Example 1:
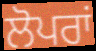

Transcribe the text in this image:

ਲੋਪਰਾਂ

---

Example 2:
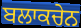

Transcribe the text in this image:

ਬਲਾਕਚੇਨ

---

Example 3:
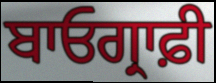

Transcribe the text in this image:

ਬਾਓਗ੍ਰਾਫ਼ੀ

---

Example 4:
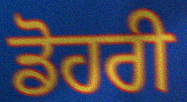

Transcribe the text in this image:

ਡੋਹਰੀ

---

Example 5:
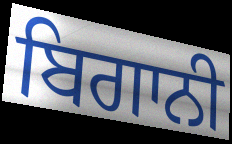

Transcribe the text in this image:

ਬਿਗਾਨੀ